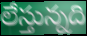
లేస్తున్నది